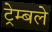
ट्रेम्बले